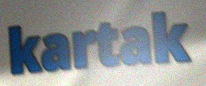
kartak